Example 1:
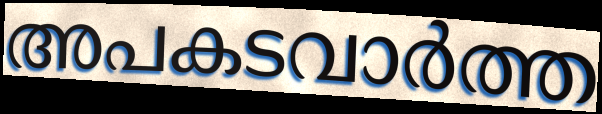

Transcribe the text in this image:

അപകടവാർത്ത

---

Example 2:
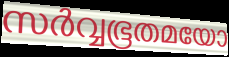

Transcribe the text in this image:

സർവ്വഭൂതമയോ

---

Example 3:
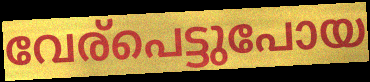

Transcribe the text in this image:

വേര്പെട്ടുപോയ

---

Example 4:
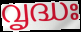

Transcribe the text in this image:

വൃദ്ധഃ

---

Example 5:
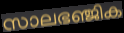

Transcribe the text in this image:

സാലഭഞ്ജിക